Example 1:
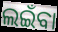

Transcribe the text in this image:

ଲଇଁବା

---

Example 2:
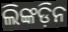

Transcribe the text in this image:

ଲିଙ୍କଡ଼ିନ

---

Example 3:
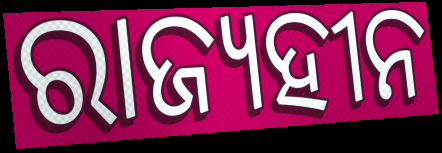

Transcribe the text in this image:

ରାଜ୍ୟହୀନ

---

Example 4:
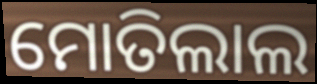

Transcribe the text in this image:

ମୋତିଲାଲ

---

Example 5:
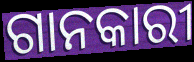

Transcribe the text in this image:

ଗାନକାରୀ